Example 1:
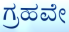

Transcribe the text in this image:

ಗ್ರಹವೇ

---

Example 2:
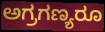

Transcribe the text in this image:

ಅಗ್ರಗಣ್ಯರೂ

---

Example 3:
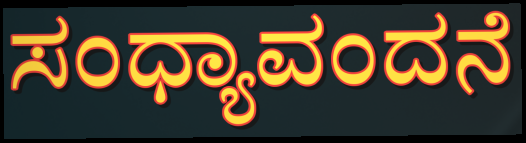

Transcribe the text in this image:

ಸಂಧ್ಯಾವಂದನೆ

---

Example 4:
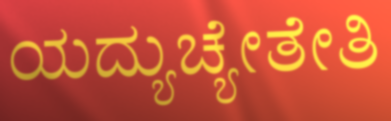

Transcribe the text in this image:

ಯದ್ಯುಚ್ಯೇತೇತಿ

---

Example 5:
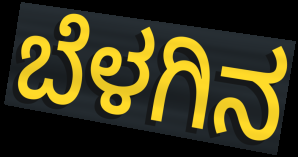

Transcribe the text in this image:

ಬೆಳಗಿನ